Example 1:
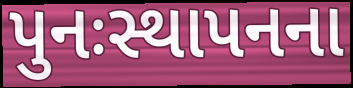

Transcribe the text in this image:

પુનઃસ્થાપનના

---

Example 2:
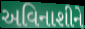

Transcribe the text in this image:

અવિનાશીને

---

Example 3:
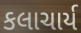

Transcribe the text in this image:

કલાચાર્ય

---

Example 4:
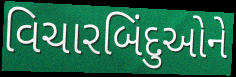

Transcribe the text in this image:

વિચારબિંદુઓને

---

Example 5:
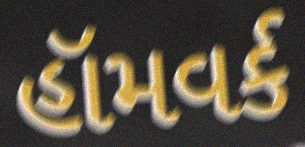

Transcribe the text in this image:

હૉમવર્ક